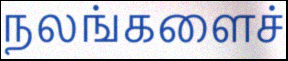
நலங்களைச்